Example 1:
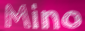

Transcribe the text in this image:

Mino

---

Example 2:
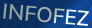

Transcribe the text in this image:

INFOFEZ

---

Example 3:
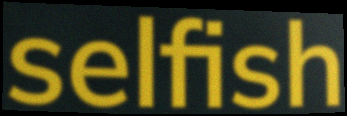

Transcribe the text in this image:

selfish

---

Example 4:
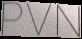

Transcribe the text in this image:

PVN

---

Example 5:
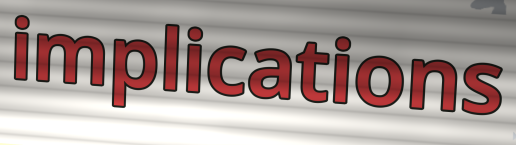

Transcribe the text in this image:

implications